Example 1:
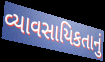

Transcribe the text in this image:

વ્યાવસાયિકતાનું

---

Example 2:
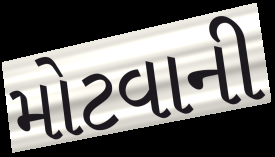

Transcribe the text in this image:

મોટવાની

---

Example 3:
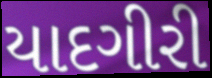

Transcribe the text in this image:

યાદગીરી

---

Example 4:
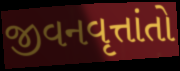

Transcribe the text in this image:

જીવનવૃત્તાંતો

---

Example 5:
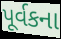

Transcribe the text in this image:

પૂર્વકના